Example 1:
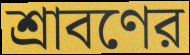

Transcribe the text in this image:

শ্রাবণের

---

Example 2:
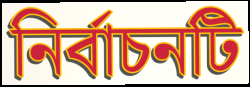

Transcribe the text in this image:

নির্বাচনটি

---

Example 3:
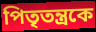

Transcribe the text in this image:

পিতৃতন্ত্রকে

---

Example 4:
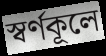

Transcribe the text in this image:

স্বর্ণকূলে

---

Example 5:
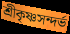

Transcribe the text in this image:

শ্রীকৃষ্ণসন্দর্ভ